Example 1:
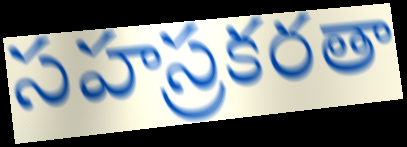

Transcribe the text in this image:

సహస్రకరతా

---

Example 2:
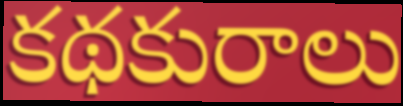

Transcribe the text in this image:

కథకురాలు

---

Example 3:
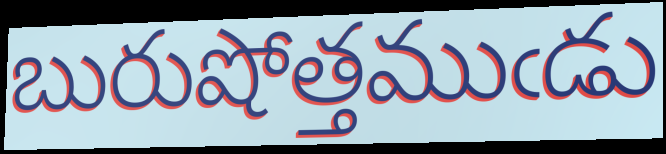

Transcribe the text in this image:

బురుషోత్తముఁడు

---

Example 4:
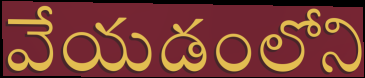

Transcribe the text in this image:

వేయడంలోని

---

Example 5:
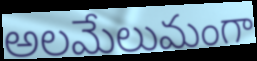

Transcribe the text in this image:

అలమేలుమంగా